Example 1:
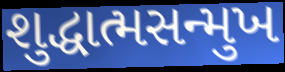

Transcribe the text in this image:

શુદ્ધાત્મસન્મુખ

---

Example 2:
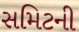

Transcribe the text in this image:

સમિટની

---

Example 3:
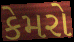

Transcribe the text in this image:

કેમરો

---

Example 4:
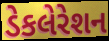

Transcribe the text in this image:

ડેકલેરેશન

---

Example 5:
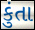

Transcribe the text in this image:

કુંતા